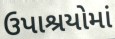
ઉપાશ્રયોમાં